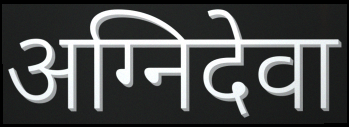
अग्निदेवा